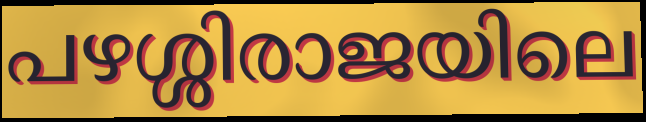
പഴശ്ശിരാജയിലെ